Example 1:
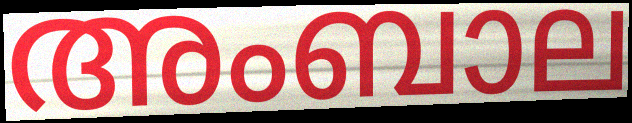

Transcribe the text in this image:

അംബാല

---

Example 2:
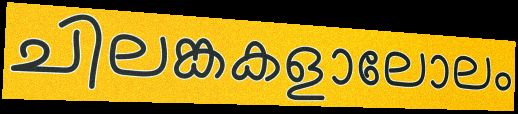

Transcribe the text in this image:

ചിലങ്കകളാലോലം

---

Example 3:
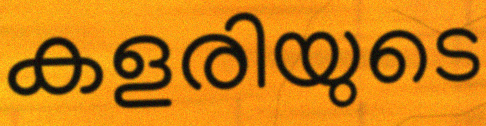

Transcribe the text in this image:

കളരിയുടെ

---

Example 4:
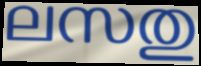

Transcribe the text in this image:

ലസതു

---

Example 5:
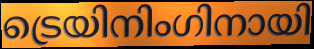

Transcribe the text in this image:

ട്രെയിനിംഗിനായി